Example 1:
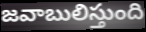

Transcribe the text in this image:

జవాబులిస్తుంది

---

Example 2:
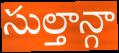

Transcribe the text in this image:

సుల్తాన్గా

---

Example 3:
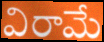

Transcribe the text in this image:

విరామే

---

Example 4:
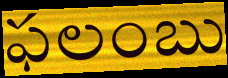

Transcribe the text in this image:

ఫలంబు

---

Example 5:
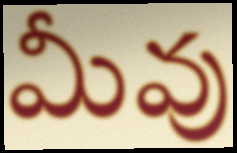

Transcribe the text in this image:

మీవు